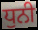
ਧੁਨੀ